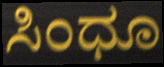
ಸಿಂಧೂ